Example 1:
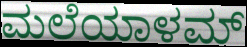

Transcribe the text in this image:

ಮಲೆಯಾಳಮ್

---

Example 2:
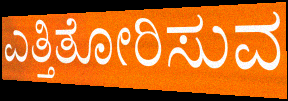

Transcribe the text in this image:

ಎತ್ತಿತೋರಿಸುವ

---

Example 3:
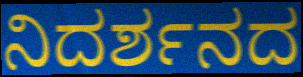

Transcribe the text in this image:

ನಿದರ್ಶನದ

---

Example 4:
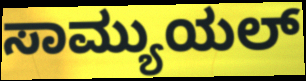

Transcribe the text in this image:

ಸಾಮ್ಯುಯಲ್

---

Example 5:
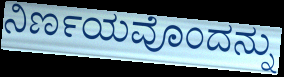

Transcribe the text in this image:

ನಿರ್ಣಯವೊಂದನ್ನು